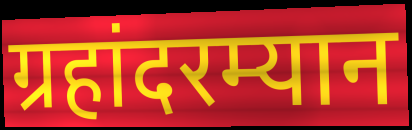
ग्रहांदरम्यान